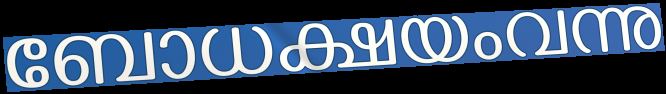
ബോധക്ഷയംവന്നു